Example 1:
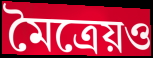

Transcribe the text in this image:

মৈত্রেয়ও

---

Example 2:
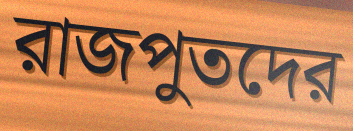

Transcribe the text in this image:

রাজপুতদের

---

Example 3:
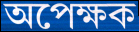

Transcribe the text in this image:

অপেক্ষক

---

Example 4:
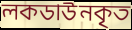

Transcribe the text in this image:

লকডাউনকৃত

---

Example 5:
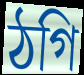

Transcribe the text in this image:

ঠগি